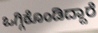
ಒಗ್ಗಿಕೊಂಡಿದ್ದಾರೆ